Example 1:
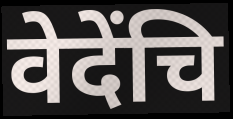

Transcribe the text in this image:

वेदेंचि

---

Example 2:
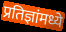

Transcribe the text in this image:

प्रतिज्ञांमध्ये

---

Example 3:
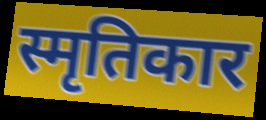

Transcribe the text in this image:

स्मृतिकार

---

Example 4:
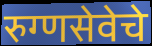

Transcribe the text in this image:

रुग्णसेवेचे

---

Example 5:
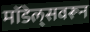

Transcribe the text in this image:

मॉडेल्सवरून